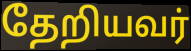
தேறியவர்